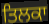
ਤਿਲਕਾ